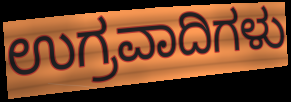
ಉಗ್ರವಾದಿಗಳು